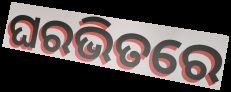
ଘରଭିତରେ